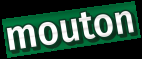
mouton